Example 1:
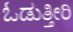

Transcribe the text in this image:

ಓಡುತ್ತೀರಿ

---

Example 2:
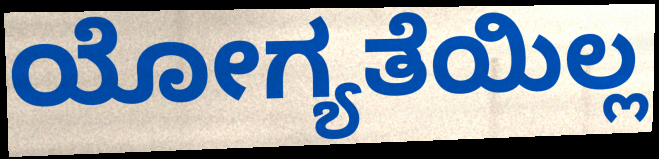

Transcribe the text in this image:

ಯೋಗ್ಯತೆಯಿಲ್ಲ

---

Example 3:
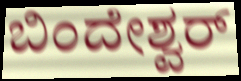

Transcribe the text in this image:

ಬಿಂದೇಶ್ವರ್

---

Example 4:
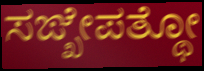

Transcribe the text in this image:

ಸಙ್ಖೇಪತ್ಥೋ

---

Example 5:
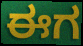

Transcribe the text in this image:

ಈಗ